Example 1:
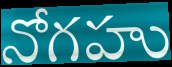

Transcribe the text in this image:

నోగహు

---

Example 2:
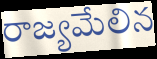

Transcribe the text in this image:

రాజ్యమేలిన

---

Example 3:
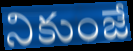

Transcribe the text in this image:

నికుంజే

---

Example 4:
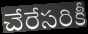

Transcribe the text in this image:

చేరేసరికీ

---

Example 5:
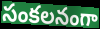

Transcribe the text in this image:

సంకలనంగా